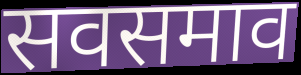
सवसमाव